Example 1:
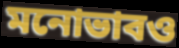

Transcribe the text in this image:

মনোভাবও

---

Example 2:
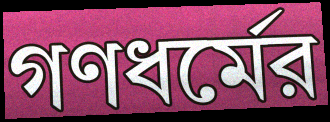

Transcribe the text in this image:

গণধর্মের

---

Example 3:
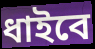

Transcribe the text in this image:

ধাইবে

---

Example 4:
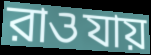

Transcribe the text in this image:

রাওযায়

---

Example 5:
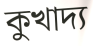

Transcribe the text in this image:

কুখাদ্য